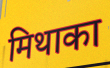
मिथाका